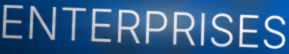
ENTERPRISES